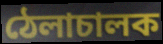
ঠেলাচালক